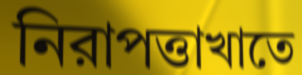
নিরাপত্তাখাতে